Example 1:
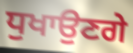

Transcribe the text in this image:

ਧੁਖਾਉਣਗੇ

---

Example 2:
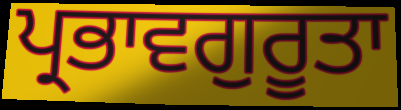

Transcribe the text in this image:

ਪ੍ਰਭਾਵਗੁਰੂਤਾ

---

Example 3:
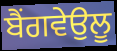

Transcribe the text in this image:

ਬੈਂਗਵੇਉਲੂ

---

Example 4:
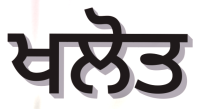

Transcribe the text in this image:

ਖਲੋਤ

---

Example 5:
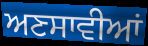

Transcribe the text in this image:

ਅਣਸਾਵੀਆਂ